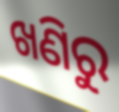
ଖଣିରୁ